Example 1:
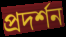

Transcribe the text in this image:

প্রদর্শন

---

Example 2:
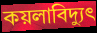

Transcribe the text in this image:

কয়লাবিদ্যুৎ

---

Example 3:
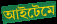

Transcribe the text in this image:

আইটেমে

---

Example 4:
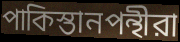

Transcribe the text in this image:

পাকিস্তানপন্থীরা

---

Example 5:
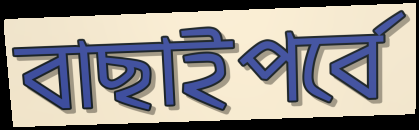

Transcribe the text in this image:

বাছাইপর্বে